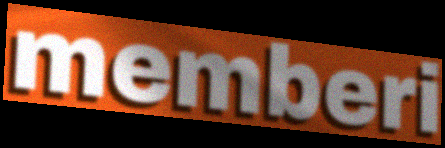
memberi